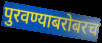
पुरवण्याबरोबरच